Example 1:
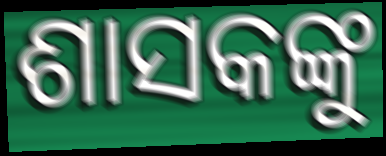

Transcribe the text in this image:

ଶାସକଙ୍କୁ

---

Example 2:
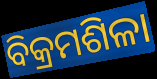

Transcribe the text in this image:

ବିକ୍ରମଶିଳା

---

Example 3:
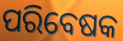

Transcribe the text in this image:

ପରିବେଷକ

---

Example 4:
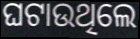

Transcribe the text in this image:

ଘଟାଉଥିଲେ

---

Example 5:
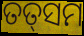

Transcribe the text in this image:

ତତ୍‍ସମ